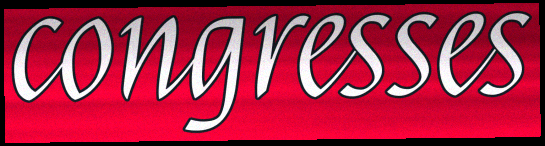
congresses